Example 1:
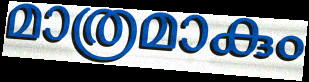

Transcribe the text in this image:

മാത്രമാകും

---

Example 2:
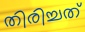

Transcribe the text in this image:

തിരിച്ചത്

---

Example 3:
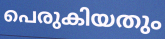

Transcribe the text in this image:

പെരുകിയതും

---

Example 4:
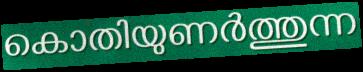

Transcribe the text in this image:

കൊതിയുണർത്തുന്ന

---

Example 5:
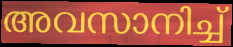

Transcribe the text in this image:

അവസാനിച്ച്